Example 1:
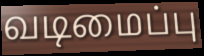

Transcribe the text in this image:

வடிமைப்பு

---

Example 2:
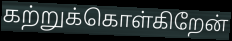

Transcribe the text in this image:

கற்றுக்கொள்கிறேன்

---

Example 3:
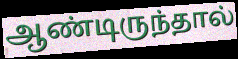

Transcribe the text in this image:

ஆண்டிருந்தால்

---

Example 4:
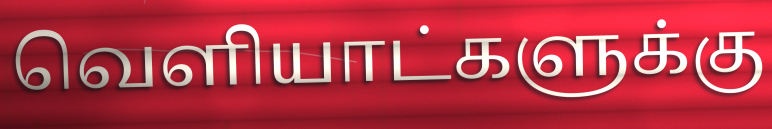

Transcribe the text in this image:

வெளியாட்களுக்கு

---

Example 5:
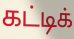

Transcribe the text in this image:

கட்டிக்